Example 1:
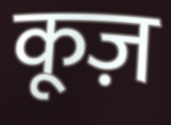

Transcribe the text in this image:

कूज़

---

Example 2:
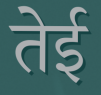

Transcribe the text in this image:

तेई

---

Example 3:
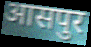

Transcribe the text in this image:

आसपुर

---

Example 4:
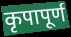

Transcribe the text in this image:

कृपापूर्ण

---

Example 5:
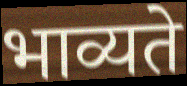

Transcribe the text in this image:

भाव्यते